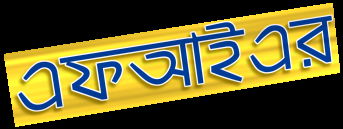
এফআইএর